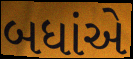
બધાંએ